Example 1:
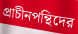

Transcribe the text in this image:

প্রাচীনপন্থিদের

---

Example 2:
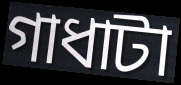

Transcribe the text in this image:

গাধাটা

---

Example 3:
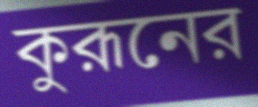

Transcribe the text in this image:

কুরূনের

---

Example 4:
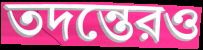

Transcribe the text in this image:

তদন্তেরও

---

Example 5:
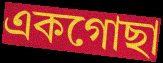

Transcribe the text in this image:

একগোছা